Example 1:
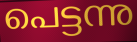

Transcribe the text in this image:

പെട്ടന്നു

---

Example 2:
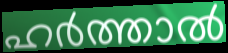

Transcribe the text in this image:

ഹർത്താൽ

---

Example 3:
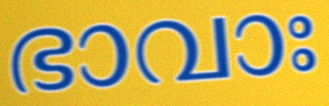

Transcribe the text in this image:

ഭാവാഃ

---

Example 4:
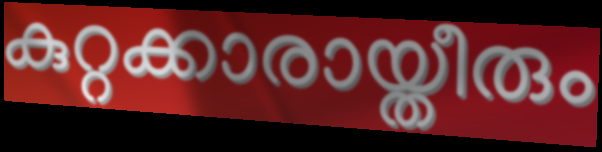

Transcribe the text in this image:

കുറ്റക്കാരായ്തീരും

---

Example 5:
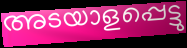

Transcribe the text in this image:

അടയാളപ്പെട്ടു